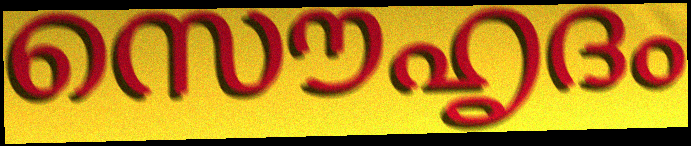
സൌഹൃദം